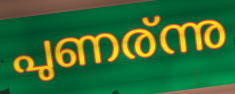
പുണര്ന്നു